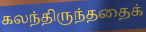
கலந்திருந்ததைக்